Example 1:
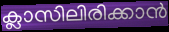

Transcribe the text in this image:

ക്ലാസിലിരിക്കാൻ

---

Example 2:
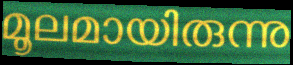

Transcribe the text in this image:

മൂലമായിരുന്നു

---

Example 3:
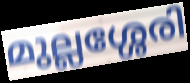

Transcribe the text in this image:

മുല്ലശ്ശേരി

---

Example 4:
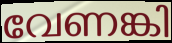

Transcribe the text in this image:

വേണങ്കി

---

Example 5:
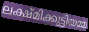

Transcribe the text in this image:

ലക്ഷ്മിക്കുട്ടിയമ്മ